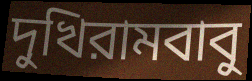
দুখিরামবাবু